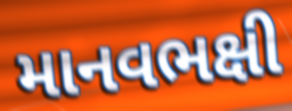
માનવભક્ષી